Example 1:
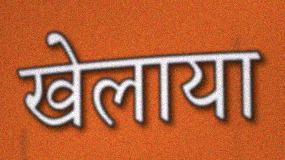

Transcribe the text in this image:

खेलाया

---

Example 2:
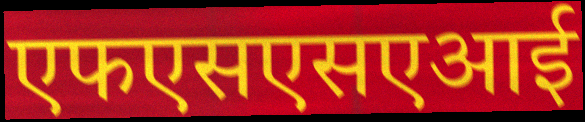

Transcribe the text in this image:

एफएसएसएआई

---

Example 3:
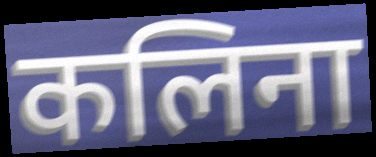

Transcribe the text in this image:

कलिना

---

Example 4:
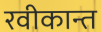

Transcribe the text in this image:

रवीकान्त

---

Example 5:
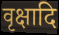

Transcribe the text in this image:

वृक्षादि